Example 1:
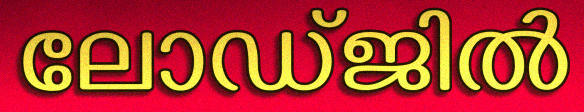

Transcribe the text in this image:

ലോഡ്ജിൽ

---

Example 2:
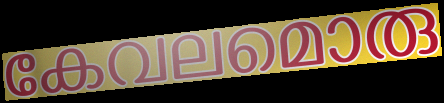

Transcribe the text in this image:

കേവലമൊരു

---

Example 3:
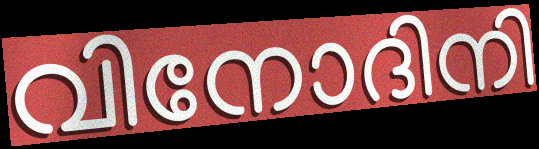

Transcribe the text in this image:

വിനോദിനി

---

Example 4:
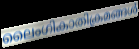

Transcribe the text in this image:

ലൈംഗികാതിക്രമങ്ങൾ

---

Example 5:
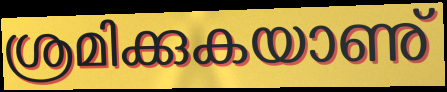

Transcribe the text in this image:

ശ്രമിക്കുകയാണു്